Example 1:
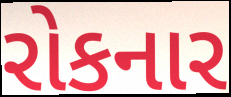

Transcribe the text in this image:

રોકનાર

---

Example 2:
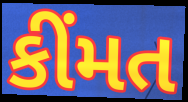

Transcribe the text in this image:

કીંમત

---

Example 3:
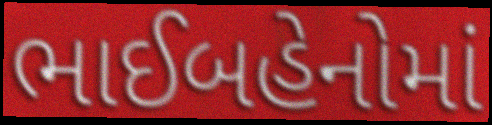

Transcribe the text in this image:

ભાઈબહેનોમાં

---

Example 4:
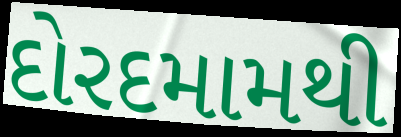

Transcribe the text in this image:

દોરદમામથી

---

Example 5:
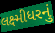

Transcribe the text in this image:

લક્ષ્મીધરનું